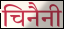
चिनैनी